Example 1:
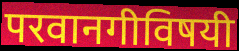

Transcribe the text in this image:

परवानगीविषयी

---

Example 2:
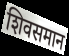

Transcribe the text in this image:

शिवसमान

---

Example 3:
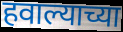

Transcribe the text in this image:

हवाल्याच्या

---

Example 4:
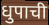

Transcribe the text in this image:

धुपाची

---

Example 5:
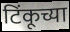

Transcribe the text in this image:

टिंकूच्या